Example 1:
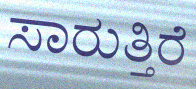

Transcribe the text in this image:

ಸಾರುತ್ತಿರೆ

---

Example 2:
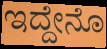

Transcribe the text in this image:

ಇದ್ದೇನೊ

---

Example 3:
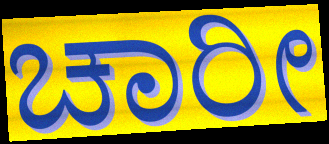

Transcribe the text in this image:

ಚಾರೀ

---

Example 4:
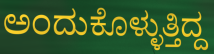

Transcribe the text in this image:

ಅಂದುಕೊಳ್ಳುತ್ತಿದ್ದ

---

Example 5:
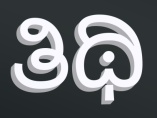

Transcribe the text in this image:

ತಿಥಿ